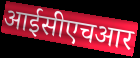
आईसीएचआर